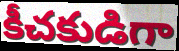
కీచకుడిగా